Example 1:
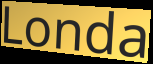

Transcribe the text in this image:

Londa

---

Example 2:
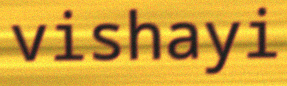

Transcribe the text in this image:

vishayi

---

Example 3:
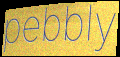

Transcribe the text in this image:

pebbly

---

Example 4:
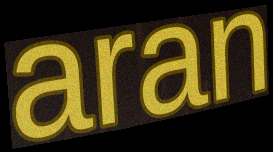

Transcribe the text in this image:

aran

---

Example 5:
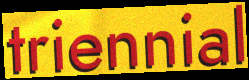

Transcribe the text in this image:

triennial